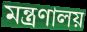
মন্ত্রণালয়